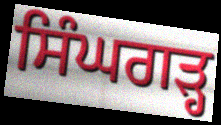
ਸਿੰਘਗੜ੍ਹ